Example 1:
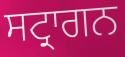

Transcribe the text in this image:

ਸਟ੍ਰਾਗਨ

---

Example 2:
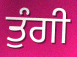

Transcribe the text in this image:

ਤੁੰਗੀ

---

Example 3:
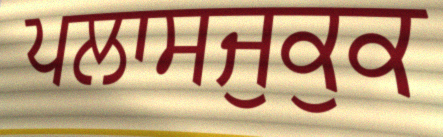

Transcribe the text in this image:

ਪਲਾਸਜੁਕੁਕ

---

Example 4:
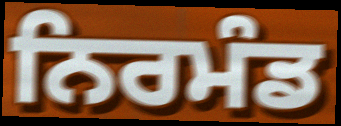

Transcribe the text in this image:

ਨਿਰਮੰਡ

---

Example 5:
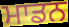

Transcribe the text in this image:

ਮਾਡਨ